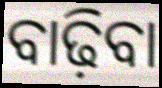
ବାଢ଼ିବା